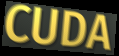
CUDA